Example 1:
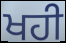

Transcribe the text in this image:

ਖਹੀ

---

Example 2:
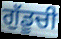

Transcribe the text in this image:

ਗੁੱਡੂਚੀ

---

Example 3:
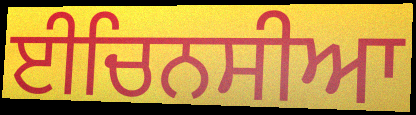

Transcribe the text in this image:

ਈਚਿਨਸੀਆ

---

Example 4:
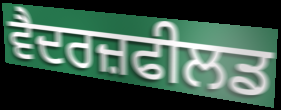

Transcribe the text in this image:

ਵੈਦਰਜ਼ਫੀਲਡ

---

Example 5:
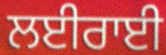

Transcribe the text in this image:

ਲਈਰਾਈ